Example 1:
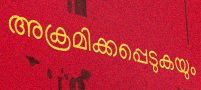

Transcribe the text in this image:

അക്രമിക്കപ്പെടുകയും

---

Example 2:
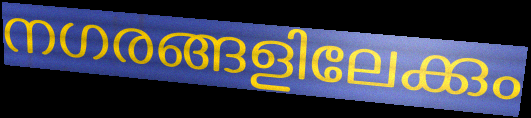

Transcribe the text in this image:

നഗരങ്ങളിലേക്കും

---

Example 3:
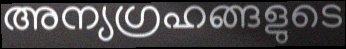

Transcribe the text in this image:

അന്യഗ്രഹങ്ങളുടെ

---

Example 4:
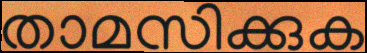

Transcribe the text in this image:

താമസിക്കുക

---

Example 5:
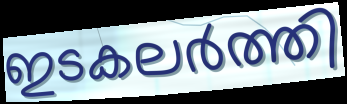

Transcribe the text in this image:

ഇടകലർത്തി